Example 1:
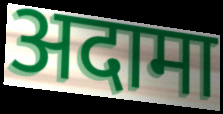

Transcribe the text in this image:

अदामा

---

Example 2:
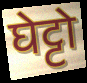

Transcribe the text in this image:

घेट्टो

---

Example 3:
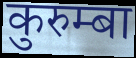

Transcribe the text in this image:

कुरुम्बा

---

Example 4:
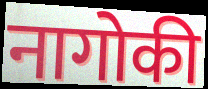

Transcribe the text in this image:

नागोकी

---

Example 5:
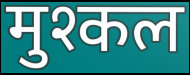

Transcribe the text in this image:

मुश्कल